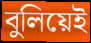
বুলিয়েই